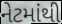
નેટમાંથી